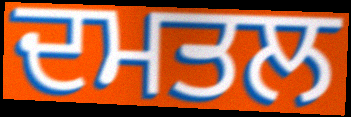
ਦਮਤਲ